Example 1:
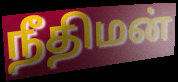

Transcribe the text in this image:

நீதிமன்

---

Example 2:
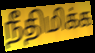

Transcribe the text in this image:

நீதிமிக்க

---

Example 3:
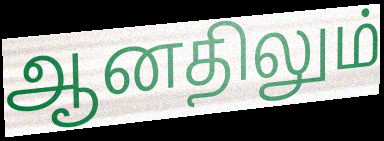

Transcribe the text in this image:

ஆனதிலும்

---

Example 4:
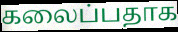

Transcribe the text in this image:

கலைப்பதாக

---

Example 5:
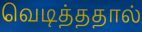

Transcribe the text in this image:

வெடித்ததால்